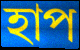
হাপ